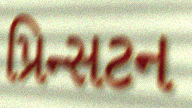
પ્રિન્સટન